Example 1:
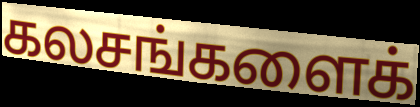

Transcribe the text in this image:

கலசங்களைக்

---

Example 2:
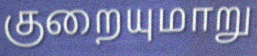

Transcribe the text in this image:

குறையுமாறு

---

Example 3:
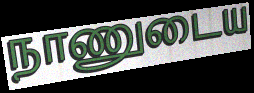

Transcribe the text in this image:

நாணுடைய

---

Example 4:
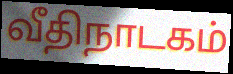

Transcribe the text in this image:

வீதிநாடகம்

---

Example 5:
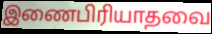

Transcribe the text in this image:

இணைபிரியாதவை